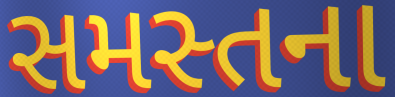
સમસ્તના